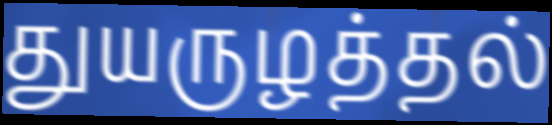
துயருழத்தல்